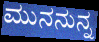
ಮುನನುನ್ನ